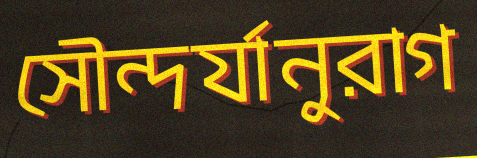
সৌন্দর্যানুরাগ